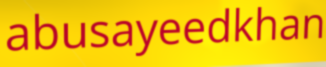
abusayeedkhan